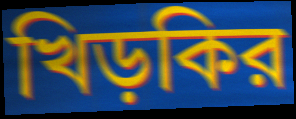
খিড়কির